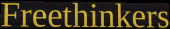
Freethinkers